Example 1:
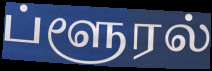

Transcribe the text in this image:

ப்ளூரல்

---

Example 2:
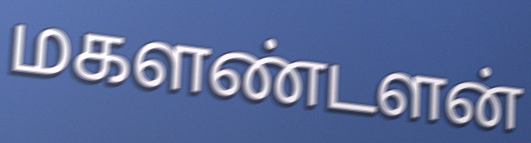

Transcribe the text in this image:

மகளண்டளன்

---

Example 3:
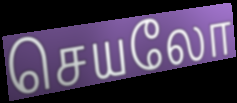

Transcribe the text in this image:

செயலோ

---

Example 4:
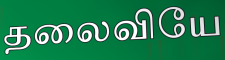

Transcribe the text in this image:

தலைவியே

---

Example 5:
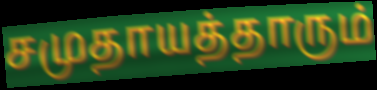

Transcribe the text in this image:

சமுதாயத்தாரும்